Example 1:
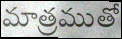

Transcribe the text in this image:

మాత్రముతో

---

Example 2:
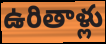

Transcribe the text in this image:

ఉరితాళ్లు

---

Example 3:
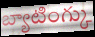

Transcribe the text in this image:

బ్యాటింగ్కు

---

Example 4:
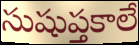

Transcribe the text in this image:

సుషుప్తకాలే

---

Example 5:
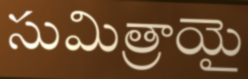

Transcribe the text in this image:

సుమిత్రాయై